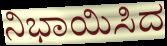
ನಿಭಾಯಿಸಿದ